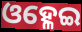
ଓହ୍ଳେଇ